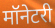
मॉनेटरी